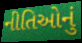
નીતિઓનું